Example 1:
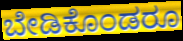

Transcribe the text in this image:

ಬೇಡಿಕೊಂಡರೂ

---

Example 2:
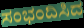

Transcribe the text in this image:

ಸಂಭಂದಿಸಿದ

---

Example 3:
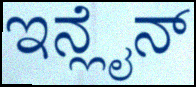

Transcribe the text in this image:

ಇನ್ಲೈನ್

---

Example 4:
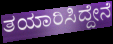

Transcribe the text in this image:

ತಯಾರಿಸಿದ್ದೇನೆ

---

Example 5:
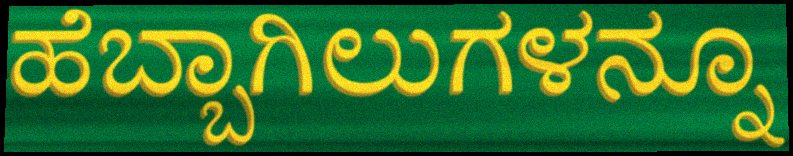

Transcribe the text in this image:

ಹೆಬ್ಬಾಗಿಲುಗಳನ್ನೂ